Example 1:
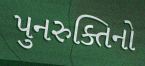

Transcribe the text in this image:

પુનરુક્તિનો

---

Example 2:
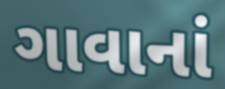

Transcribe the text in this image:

ગાવાનાં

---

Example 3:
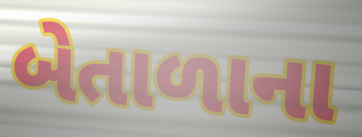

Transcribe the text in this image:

બેતાળાના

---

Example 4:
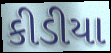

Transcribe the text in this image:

કીડીયા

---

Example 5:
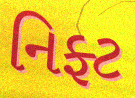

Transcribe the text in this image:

નિફ્ટ